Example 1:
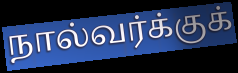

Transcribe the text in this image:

நால்வர்க்குக்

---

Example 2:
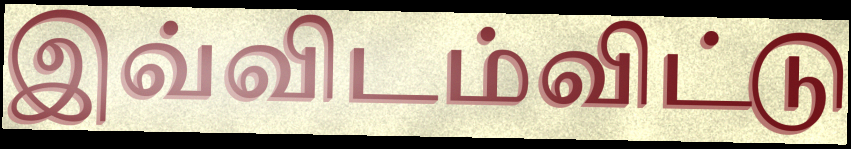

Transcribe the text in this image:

இவ்விடம்விட்டு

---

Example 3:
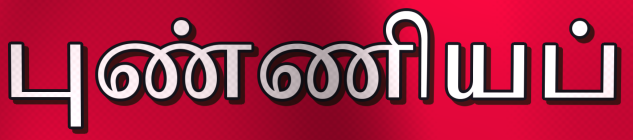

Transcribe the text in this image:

புண்ணியப்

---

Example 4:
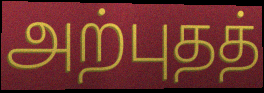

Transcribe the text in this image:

அற்புதத்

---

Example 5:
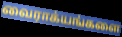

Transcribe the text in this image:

வைராக்யங்களை